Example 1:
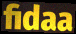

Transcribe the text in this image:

fidaa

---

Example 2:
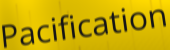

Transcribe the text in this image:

Pacification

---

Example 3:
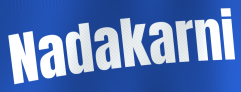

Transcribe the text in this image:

Nadakarni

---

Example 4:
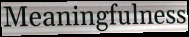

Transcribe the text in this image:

Meaningfulness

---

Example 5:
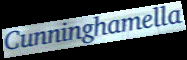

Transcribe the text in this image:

Cunninghamella